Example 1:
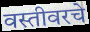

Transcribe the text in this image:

वस्तीवरचे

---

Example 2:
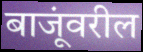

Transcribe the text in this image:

बाजूंवरील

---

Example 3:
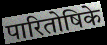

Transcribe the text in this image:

पारितोषिके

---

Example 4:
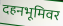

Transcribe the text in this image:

दहनभूमिवर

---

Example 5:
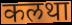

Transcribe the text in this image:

कलथा